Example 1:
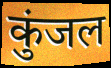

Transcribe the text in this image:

कुंजल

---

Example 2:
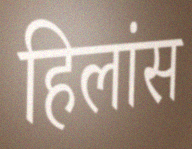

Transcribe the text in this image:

हिलांस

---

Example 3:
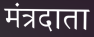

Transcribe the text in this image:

मंत्रदाता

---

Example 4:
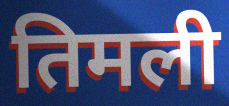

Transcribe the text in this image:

तिमली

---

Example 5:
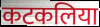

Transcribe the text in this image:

कटकलिया